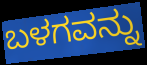
ಬಳಗವನ್ನು